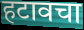
हटावचा